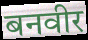
बनवीर